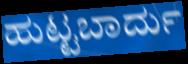
ಹುಟ್ಟಬಾರ್ದು